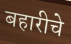
बहारीचे